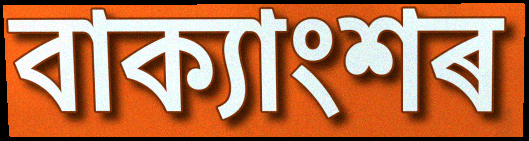
বাক্যাংশৰ